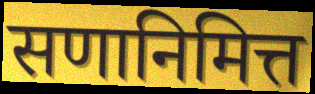
सणानिमित्त